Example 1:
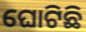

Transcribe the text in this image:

ଘୋଟିଛି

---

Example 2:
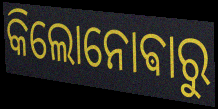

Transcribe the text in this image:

କିଲୋନୋଵାରୁ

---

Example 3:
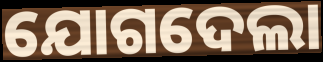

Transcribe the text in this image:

ଯୋଗଦେଲା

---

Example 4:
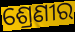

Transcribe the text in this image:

ଶ୍ରେଣୀର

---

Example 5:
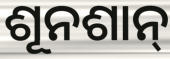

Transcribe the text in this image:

ଶୂନଶାନ୍